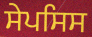
ਸੇਪਸਿਸ